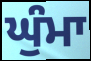
ਘੁੰਮਾ